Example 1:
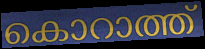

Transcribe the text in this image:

കൊറാത്ത്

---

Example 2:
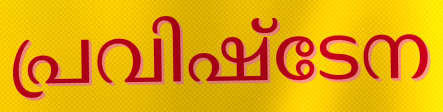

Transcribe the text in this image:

പ്രവിഷ്ടേന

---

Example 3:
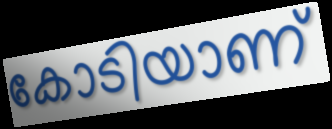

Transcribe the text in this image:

കോടിയാണ്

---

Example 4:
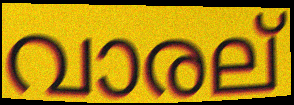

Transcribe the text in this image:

വാരല്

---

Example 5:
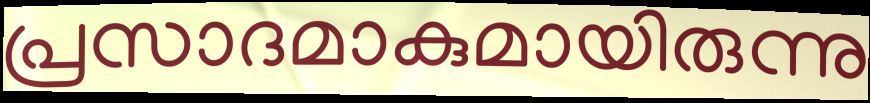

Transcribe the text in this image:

പ്രസാദമാകുമായിരുന്നു